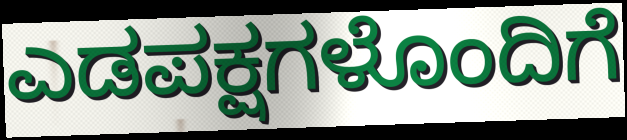
ಎಡಪಕ್ಷಗಳೊಂದಿಗೆ